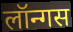
लॉन्गस